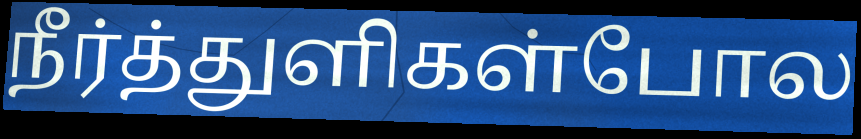
நீர்த்துளிகள்போல